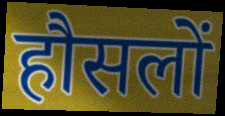
हौसलों